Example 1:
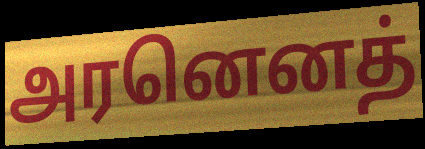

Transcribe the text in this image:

அரனெனத்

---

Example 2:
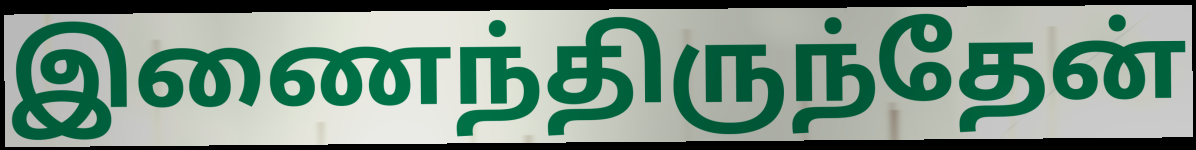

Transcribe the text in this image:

இணைந்திருந்தேன்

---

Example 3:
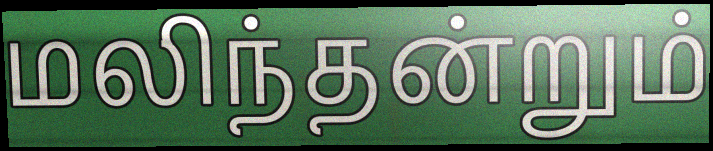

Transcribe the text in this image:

மலிந்தன்றும்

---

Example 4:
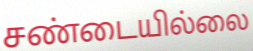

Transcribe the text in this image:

சண்டையில்லை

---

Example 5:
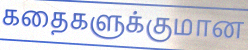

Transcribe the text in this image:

கதைகளுக்குமான